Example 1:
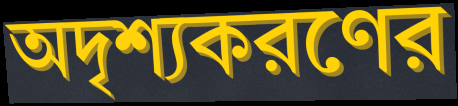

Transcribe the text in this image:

অদৃশ্যকরণের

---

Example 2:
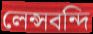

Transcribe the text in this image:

লেন্সবন্দি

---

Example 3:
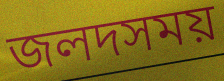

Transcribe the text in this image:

জলদসময়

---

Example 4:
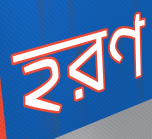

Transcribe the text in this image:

হরণ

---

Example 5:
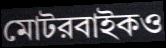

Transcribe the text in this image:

মোটরবাইকও